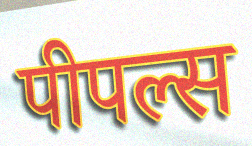
पीपल्स